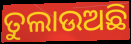
ତୁଲାଉଅଛି